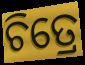
ଚିତ୍ରେ